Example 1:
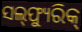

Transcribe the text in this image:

ସଲ୍‌ଫ୍ୟୁରିକ୍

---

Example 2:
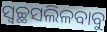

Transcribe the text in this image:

ସ୍ୱଚ୍ଛସଲିଳବାବୁ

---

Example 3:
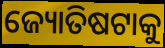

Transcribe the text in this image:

ଜ୍ୟୋତିଷଟାକୁ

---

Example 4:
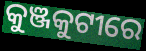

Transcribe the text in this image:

କୁଞ୍ଜକୁଟୀରେ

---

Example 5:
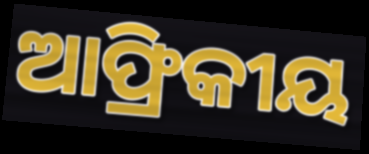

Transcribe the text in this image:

ଆଫ୍ରିକୀୟ